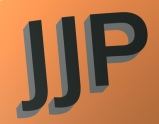
JJP